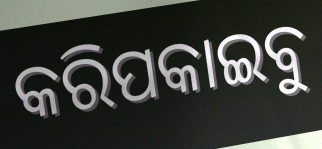
କରିପକାଇବୁ